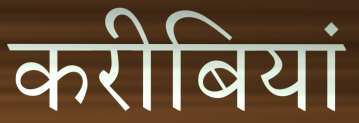
करीबियां